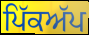
ਪਿੱਕਅੱਪ